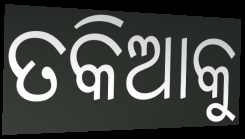
ତକିଆକୁ